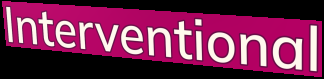
Interventional